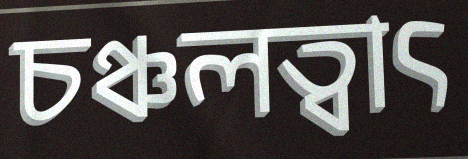
চঞ্চলত্বাৎ